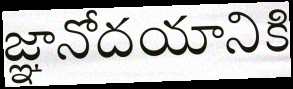
జ్ఞానోదయానికి